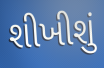
શીખીશું